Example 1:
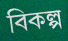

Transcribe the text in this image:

বিকল্প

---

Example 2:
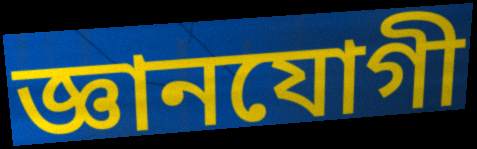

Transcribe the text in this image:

জ্ঞানযোগী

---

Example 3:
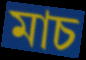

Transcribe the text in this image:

মাচ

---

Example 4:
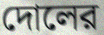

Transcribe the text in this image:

দোলের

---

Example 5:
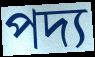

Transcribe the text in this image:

পদ্য